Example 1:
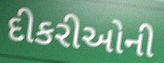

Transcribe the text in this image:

દીકરીઓની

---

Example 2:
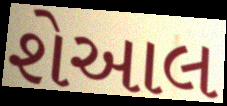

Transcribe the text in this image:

શેઆલ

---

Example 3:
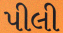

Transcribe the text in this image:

પીલી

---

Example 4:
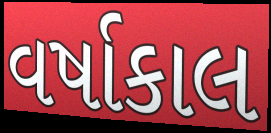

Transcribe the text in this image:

વર્ષાકાલ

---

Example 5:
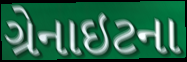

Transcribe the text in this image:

ગ્રેનાઇટના